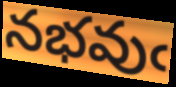
నభవుఁ